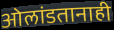
ओलांडतानाही